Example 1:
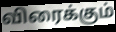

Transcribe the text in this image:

விரைக்கும்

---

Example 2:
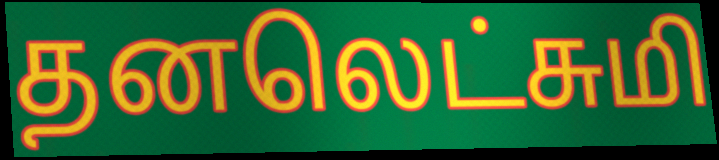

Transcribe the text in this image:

தனலெட்சுமி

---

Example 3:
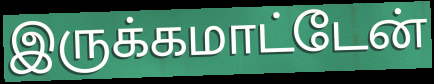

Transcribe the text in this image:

இருக்கமாட்டேன்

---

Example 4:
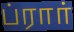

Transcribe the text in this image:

ப்ரார்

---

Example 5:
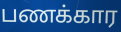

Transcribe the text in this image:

பணக்கார